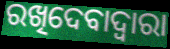
ରଖିଦେବାଦ୍ୱାରା